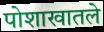
पोशाखातले